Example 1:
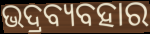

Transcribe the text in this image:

ଭଦ୍ରବ୍ୟବହାର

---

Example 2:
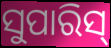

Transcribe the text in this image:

ସୁପାରିସ୍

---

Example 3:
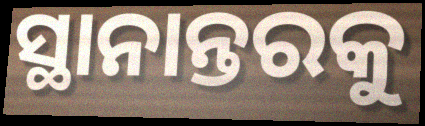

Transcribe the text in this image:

ସ୍ଥାନାନ୍ତରକୁ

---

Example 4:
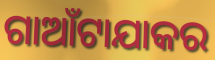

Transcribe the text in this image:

ଗାଆଁଟାଯାକର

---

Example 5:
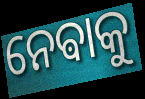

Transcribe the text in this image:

ନେଵାକୁ